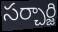
సర్చార్జి